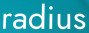
radius